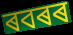
ৰবৰৰ